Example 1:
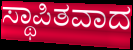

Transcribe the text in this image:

ಸ್ಥಾಪಿತವಾದ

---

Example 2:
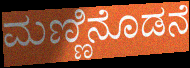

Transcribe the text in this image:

ಮಣ್ಣಿನೊಡನೆ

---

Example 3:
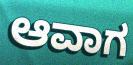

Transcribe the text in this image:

ಆವಾಗ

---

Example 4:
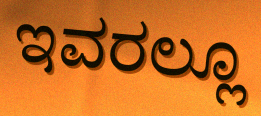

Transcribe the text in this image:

ಇವರಲ್ಲೂ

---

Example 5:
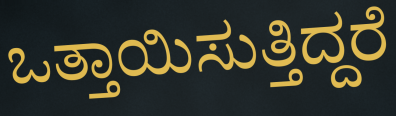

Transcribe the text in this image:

ಒತ್ತಾಯಿಸುತ್ತಿದ್ದರೆ